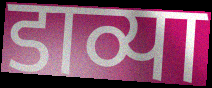
डाव्या